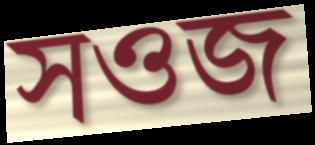
সওজ